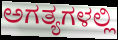
ಅಗತ್ಯಗಳಲ್ಲಿ